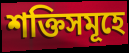
শক্তিসমূহে